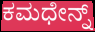
ಕಮಧೇನ್ನ್